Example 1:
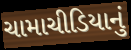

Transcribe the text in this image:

ચામાચીડિયાનું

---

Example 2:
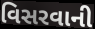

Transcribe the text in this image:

વિસરવાની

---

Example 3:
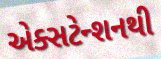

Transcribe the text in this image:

એક્સટેન્શનથી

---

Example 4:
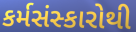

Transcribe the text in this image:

કર્મસંસ્કારોથી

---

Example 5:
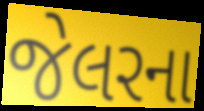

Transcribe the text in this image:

જેલરના